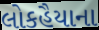
લોકહૈયાના